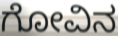
ಗೋವಿನ